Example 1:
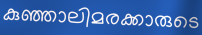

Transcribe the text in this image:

കുഞ്ഞാലിമരക്കാരുടെ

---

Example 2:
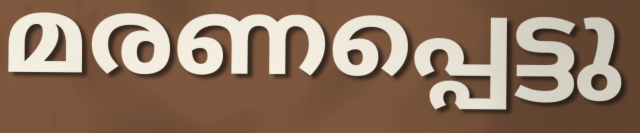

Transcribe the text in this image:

മരണപ്പെട്ടു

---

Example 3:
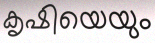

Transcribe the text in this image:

കൃഷിയെയും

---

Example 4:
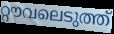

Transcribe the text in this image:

റ്റൗവലെടുത്ത്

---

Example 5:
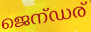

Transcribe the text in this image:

ജെന്ഡര്